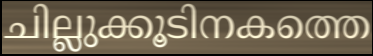
ചില്ലുക്കൂടിനകത്തെ